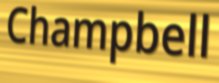
Champbell